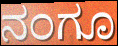
ನಂಗೂ